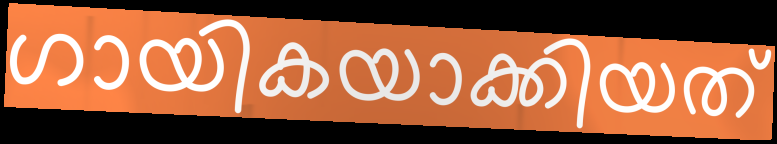
ഗായികയാക്കിയത്